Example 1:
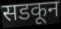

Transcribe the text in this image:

सडकून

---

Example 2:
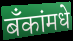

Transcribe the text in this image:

बँकांमधे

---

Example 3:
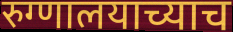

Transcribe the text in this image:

रुग्णालयाच्याच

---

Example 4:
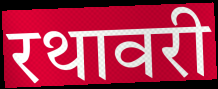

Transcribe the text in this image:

रथावरी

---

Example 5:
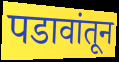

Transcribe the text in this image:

पडावांतून